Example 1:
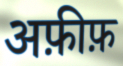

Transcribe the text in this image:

अफ़ीफ़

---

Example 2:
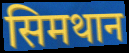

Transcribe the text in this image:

सिमथान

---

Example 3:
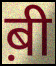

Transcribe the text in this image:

ब़ी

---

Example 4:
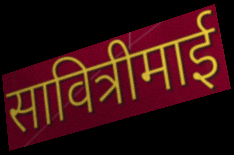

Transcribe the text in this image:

सावित्रीमाई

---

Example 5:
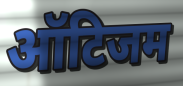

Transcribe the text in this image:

ऑटिजम